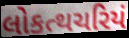
લોકત્થચરિયં